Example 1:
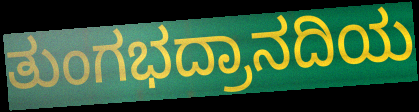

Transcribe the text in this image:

ತುಂಗಭದ್ರಾನದಿಯ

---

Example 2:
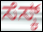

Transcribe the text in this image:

ಸೆಸ್ಕ್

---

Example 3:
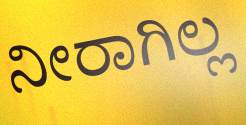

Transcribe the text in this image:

ನೀರಾಗಿಲ್ಲ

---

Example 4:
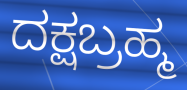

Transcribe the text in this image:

ದಕ್ಷಬ್ರಹ್ಮ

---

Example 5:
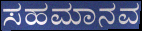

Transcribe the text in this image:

ಸಹಮಾನವ